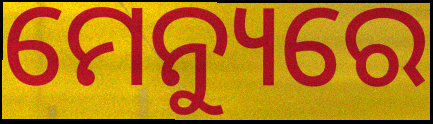
ମେନ୍ୟୁରେ